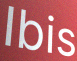
Ibis